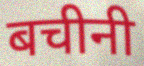
बचीनी